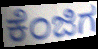
ಕೆಂಜಿಗ